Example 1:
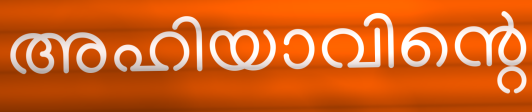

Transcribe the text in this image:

അഹിയാവിന്റെ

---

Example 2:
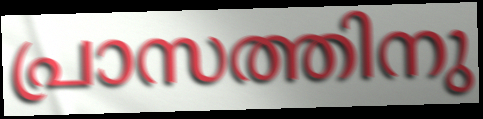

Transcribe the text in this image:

പ്രാസത്തിനു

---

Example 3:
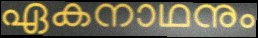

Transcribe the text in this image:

ഏകനാഥനും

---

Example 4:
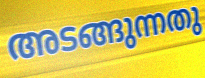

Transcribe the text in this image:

അടങ്ങുന്നതു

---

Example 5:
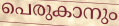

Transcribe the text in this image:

പെരുകാനും